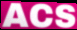
ACS